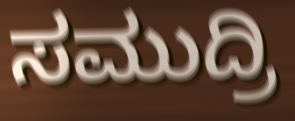
ಸಮುದ್ರಿ